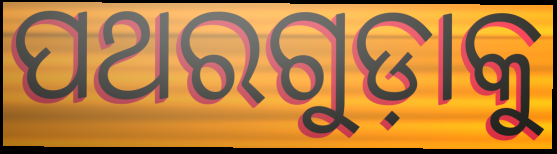
ପଥରଗୁଡ଼ାକୁ